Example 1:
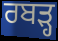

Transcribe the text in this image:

ਰਬੜ੍ਹ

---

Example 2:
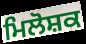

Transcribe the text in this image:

ਮਿਲੋਸ਼ਕ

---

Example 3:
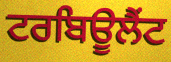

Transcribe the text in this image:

ਟਰਬਿਊਲੈਂਟ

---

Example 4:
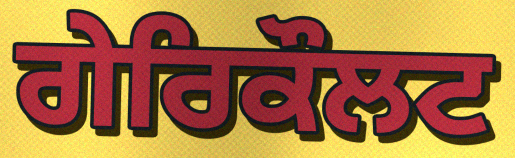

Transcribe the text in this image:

ਗੇਰਿਕੌਲਟ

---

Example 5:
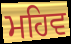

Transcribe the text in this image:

ਮਹਿਵ